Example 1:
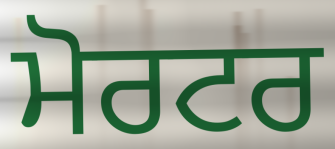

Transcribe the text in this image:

ਮੋਰਟਰ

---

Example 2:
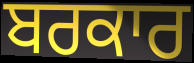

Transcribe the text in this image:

ਬਰਕਾਰ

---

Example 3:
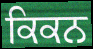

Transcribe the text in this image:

ਕਿਕਨ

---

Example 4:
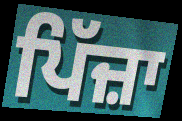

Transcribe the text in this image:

ਪਿੱਜ਼ਾ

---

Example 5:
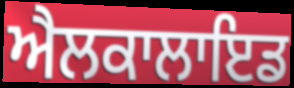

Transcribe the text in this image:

ਐਲਕਾਲਾਇਡ